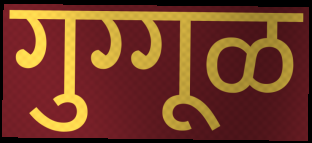
गुग्गूळ